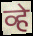
व्हे